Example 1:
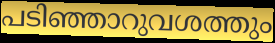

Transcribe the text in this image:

പടിഞ്ഞാറുവശത്തും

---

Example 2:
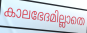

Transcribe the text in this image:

കാലഭേദമില്ലാതെ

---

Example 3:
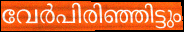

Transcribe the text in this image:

വേർപിരിഞ്ഞിട്ടും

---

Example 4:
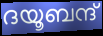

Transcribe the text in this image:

ദയൂബന്ദ്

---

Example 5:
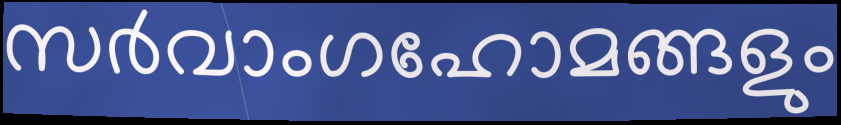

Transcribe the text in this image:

സർവാംഗഹോമങ്ങളും